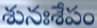
శునఃశేపం